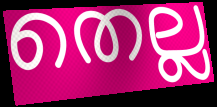
തെല്ല